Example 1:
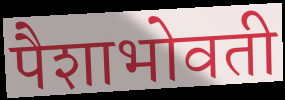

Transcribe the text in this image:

पैशाभोवती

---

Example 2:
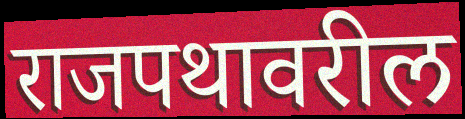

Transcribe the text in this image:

राजपथावरील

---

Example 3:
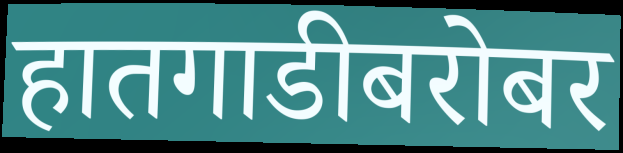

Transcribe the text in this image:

हातगाडीबरोबर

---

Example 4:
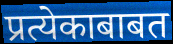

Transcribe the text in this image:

प्रत्येकाबाबत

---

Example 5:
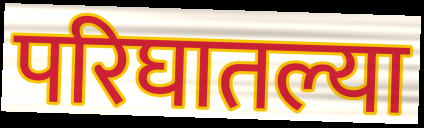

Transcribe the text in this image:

परिघातल्या